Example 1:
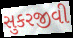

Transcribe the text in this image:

સુકરજીવી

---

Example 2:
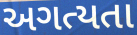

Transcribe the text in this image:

અગત્યતા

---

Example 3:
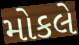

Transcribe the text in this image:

મોકલે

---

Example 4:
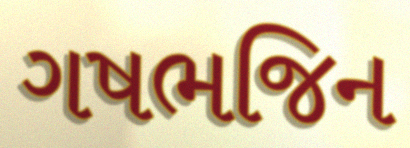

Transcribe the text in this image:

ગષભજિન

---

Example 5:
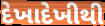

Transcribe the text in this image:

દેખાદેખીથી